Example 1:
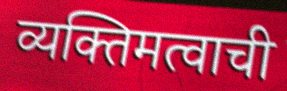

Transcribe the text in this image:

व्यक्तिमत्वाची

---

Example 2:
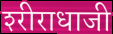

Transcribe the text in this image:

श्रीराधाजी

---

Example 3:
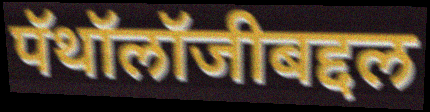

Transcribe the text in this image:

पॅथॉलॉजीबद्दल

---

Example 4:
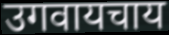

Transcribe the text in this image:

उगवायचाय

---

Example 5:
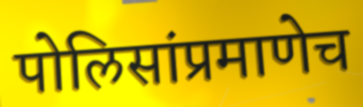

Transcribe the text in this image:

पोलिसांप्रमाणेच